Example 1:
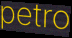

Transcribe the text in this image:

petro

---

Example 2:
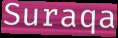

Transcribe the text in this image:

Suraqa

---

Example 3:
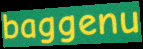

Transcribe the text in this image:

baggenu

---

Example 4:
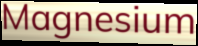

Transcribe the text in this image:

Magnesium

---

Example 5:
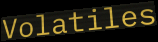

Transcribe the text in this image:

Volatiles